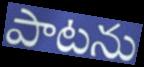
పాటను